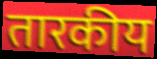
तारकीय